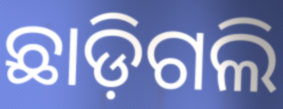
ଛାଡ଼ିଗଲି